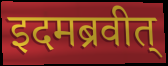
इदमब्रवीत्